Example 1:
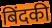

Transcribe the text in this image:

बिंदकी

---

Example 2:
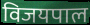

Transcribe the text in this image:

विजयपाल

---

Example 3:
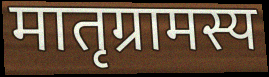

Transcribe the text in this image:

मातृग्रामस्य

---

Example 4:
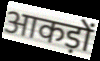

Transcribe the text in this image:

आकड़ों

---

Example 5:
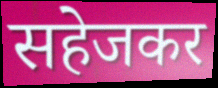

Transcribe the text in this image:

सहेजकर